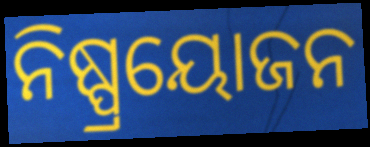
ନିଷ୍ପ୍ରୟୋଜନ